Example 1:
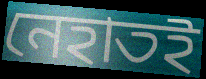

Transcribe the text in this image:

নেহাতই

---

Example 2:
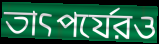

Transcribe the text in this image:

তাৎপর্যেরও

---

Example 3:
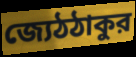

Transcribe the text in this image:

জ্যেঠঠাকুর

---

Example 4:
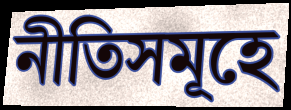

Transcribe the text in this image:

নীতিসমূহে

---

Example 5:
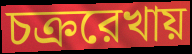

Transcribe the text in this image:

চক্ররেখায়